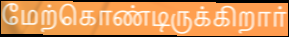
மேற்கொண்டிருக்கிறார்